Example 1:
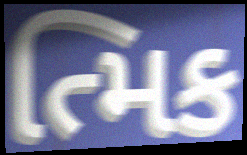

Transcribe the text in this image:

ત્મિક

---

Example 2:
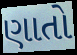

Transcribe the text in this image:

ણાતો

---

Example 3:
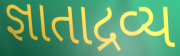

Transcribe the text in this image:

જ્ઞાતાદ્રવ્ય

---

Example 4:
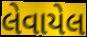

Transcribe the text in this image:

લેવાયેલ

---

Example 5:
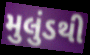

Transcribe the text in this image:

મુલુંડથી